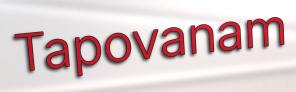
Tapovanam